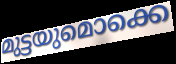
മുട്ടയുമൊക്കെ